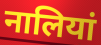
नालियां